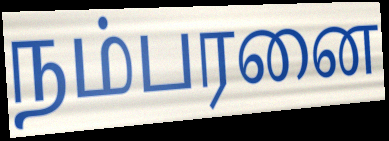
நம்பரனை